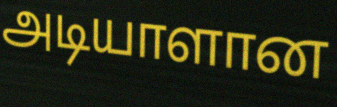
அடியாளான